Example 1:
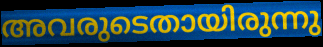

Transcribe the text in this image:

അവരുടെതായിരുന്നു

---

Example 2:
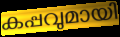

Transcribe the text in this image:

കപ്പവുമായി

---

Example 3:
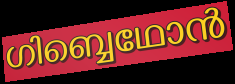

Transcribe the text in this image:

ഗിബ്ബെഥോൻ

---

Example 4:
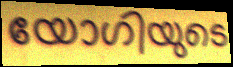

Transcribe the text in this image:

യോഗിയുടെ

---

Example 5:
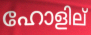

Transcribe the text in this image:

ഹോളില്